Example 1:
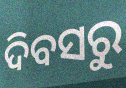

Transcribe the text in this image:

ଦିବସରୁ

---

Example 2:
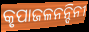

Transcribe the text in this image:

କୃପାଜଳନନ୍ଦିନୀ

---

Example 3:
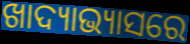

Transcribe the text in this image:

ଖାଦ୍ୟାଭ୍ୟାସରେ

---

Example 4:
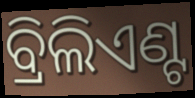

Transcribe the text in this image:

ବ୍ରିଲିଏଣ୍ଟ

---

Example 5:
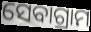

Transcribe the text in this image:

ସେବାଗ୍ରାମ